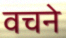
वचने